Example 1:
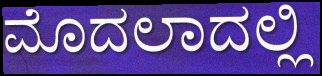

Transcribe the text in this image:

ಮೊದಲಾದಲ್ಲಿ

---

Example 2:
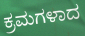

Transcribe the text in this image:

ಕ್ರಮಗಳಾದ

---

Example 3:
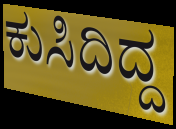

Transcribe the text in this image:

ಕುಸಿದಿದ್ದ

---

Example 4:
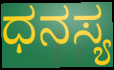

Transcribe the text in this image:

ಧನಸ್ಯ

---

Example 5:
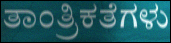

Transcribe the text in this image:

ತಾಂತ್ರಿಕತೆಗಳು